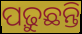
ପଢ଼ୁଛନ୍ତି